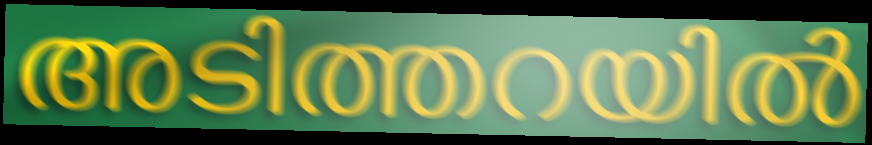
അടിത്തറയിൽ